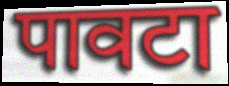
पावटा